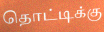
தொட்டிக்கு